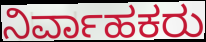
ನಿರ್ವಾಹಕರು